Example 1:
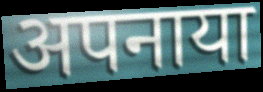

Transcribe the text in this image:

अपनाया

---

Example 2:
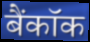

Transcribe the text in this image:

बैंकॉक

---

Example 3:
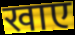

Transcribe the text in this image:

खाए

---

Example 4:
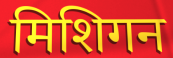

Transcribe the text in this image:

मिशिगन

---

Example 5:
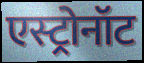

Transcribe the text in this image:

एस्‍ट्रोनॉट